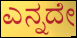
ಎನ್ನದೇ